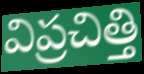
విప్రచిత్తి